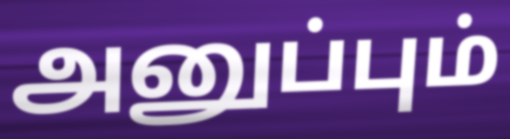
அனுப்பும்